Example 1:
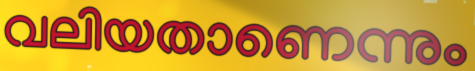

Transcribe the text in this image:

വലിയതാണെന്നും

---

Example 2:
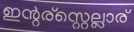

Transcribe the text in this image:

ഇന്റര്സ്റ്റെല്ലാര്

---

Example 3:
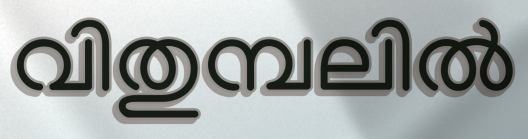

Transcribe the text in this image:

വിതുമ്പലിൽ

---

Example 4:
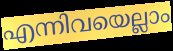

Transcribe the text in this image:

എന്നിവയെല്ലാം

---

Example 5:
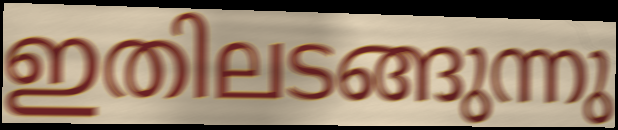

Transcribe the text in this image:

ഇതിലടങ്ങുന്നു